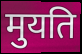
मुयति